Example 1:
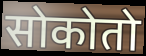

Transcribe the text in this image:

सोकोतो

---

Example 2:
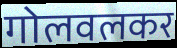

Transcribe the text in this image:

गोलवलकर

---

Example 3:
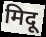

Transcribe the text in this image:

मिदू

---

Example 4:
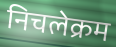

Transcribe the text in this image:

निचलेक्रम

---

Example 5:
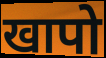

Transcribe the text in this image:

खापो